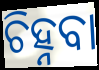
ଚିହ୍ନବା